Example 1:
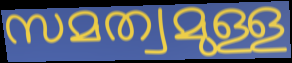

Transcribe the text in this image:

സമത്വമുള്ള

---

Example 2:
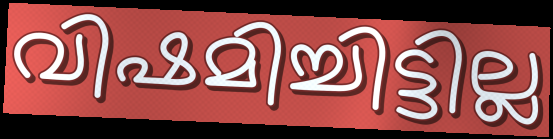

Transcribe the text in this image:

വിഷമിച്ചിട്ടില്ല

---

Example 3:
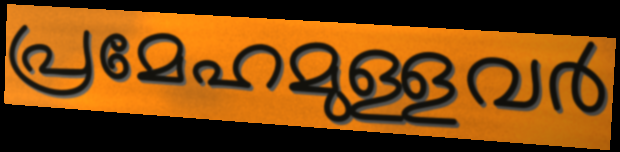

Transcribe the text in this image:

പ്രമേഹമുള്ളവർ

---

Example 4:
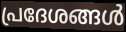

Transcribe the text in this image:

പ്രദേശങ്ങൾ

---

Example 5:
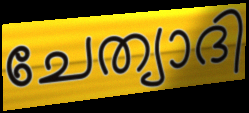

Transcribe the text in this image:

ചേത്യാദി